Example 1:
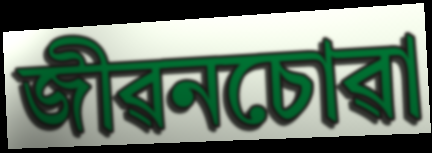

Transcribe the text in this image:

জীৱনচোৱা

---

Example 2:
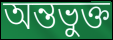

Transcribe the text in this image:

অন্তভুক্ত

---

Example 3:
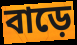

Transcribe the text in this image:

বাড়ে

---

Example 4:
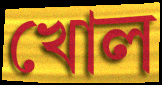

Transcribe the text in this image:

খোল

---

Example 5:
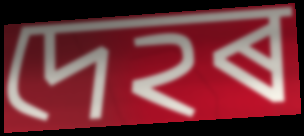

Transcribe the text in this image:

দেহৰ